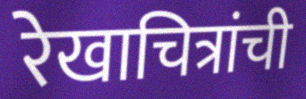
रेखाचित्रांची